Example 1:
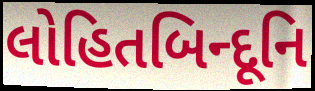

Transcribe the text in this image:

લોહિતબિન્દૂનિ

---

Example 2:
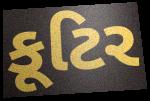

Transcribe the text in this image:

કૂટિર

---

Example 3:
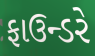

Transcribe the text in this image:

ફાઉન્ડરે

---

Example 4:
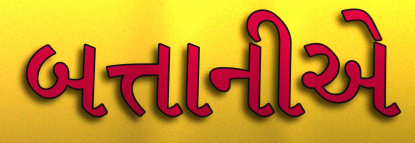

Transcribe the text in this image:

બત્તાનીએ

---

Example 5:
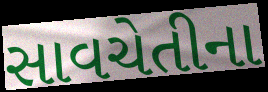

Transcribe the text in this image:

સાવચેતીના